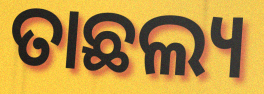
ତାଛଲ୍ୟ